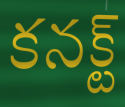
కనక్ట్